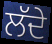
ਲੱਦੇ